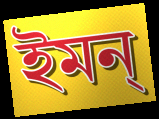
ইমন্